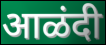
आळंदी